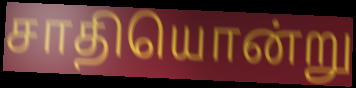
சாதியொன்று